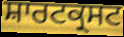
ਸ਼ਾਰਟਕ੍ਰਸਟ